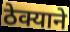
ठेक्याने